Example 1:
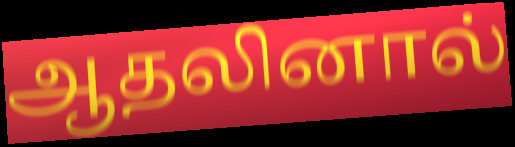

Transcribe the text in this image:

ஆதலினால்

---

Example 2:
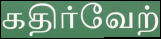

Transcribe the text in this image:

கதிர்வேற்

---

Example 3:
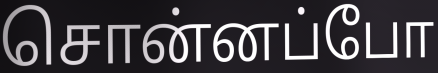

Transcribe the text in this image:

சொன்னப்போ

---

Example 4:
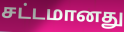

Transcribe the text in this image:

சட்டமானது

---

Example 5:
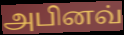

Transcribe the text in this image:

அபினவ்